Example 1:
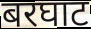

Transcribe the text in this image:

बरघाट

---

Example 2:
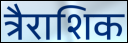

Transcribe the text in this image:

त्रैराशिक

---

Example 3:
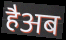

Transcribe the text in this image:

हैअब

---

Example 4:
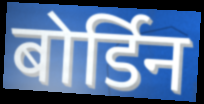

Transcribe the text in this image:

बोर्डिन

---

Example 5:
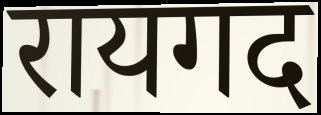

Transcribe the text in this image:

रायगद